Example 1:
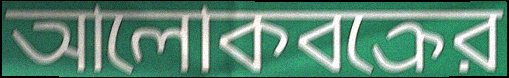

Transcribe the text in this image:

আলোকবক্রের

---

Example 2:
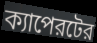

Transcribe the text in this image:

ক্যাপেরটের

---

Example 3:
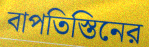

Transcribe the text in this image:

বাপতিস্তিনের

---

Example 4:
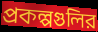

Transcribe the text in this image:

প্রকল্পগুলির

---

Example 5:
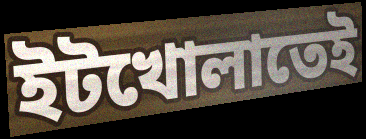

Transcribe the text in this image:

ইটখোলাতেই